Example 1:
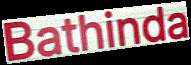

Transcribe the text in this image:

Bathinda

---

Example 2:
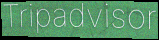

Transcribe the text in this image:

Tripadvisor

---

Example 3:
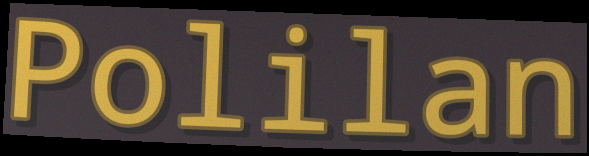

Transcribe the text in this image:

Polilan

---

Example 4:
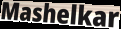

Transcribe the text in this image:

Mashelkar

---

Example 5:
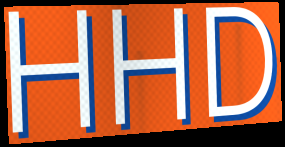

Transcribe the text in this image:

HHD